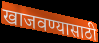
खाजवण्यासाठी